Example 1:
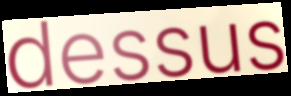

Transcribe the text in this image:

dessus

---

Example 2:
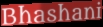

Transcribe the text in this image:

Bhashani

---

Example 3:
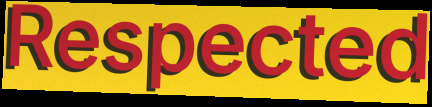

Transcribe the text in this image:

Respected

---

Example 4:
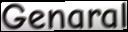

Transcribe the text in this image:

Genaral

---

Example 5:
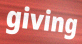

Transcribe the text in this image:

giving